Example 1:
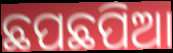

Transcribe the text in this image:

ଛପଛପିଆ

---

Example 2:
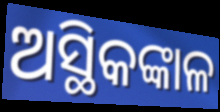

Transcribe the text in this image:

ଅସ୍ଥିକଙ୍କାଳ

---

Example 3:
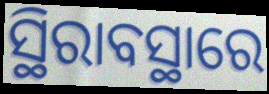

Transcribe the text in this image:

ସ୍ଥିରାବସ୍ଥାରେ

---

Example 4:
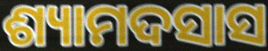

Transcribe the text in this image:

ଶ୍ୟାମଦସାସ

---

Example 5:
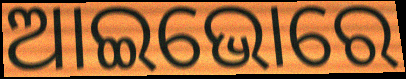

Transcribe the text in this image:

ଆଇଭୋରେ